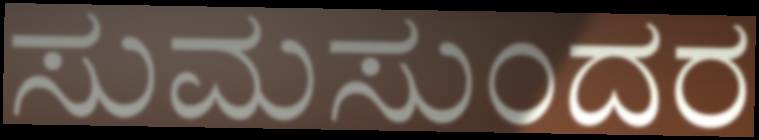
ಸುಮಸುಂದರ